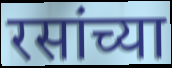
रसांच्या